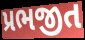
પ્રભજીત